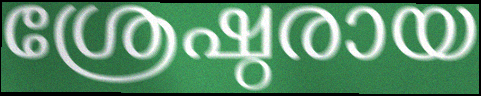
ശ്രേഷ്ഠരായ